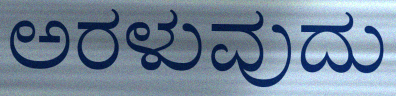
ಅರಳುವುದು